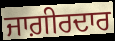
ਜਾਗ਼ੀਰਦਾਰ